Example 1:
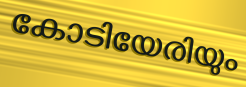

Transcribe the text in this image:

കോടിയേരിയും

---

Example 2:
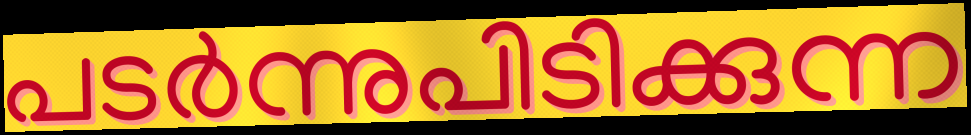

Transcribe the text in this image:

പടർന്നുപിടിക്കുന്ന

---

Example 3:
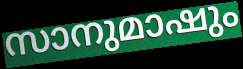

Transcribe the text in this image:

സാനുമാഷും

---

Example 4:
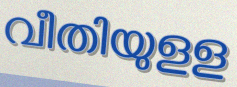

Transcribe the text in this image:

വീതിയുളള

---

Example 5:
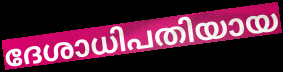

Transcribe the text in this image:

ദേശാധിപതിയായ